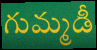
గుమ్మడీ